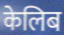
केलिब